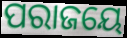
ପରାଜୟେ